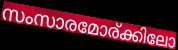
സംസാരമോര്ക്കിലോ